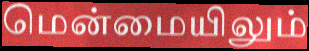
மென்மையிலும்